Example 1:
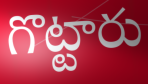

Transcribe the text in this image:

గొట్టారు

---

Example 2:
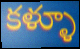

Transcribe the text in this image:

కళ్ళూ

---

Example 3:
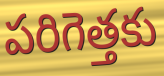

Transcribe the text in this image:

పరిగెత్తకు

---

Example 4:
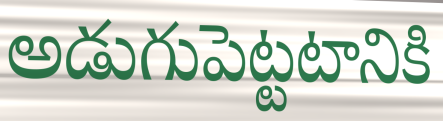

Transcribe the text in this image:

అడుగుపెట్టటానికి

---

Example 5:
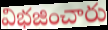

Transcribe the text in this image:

విభజించారు